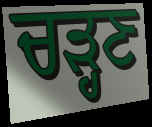
ਚੜ੍ਹਣ